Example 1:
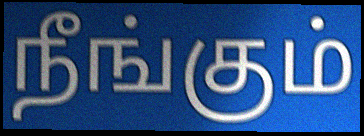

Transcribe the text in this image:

நீங்கும்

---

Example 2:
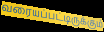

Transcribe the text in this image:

வரையப்பட்டிருக்கும்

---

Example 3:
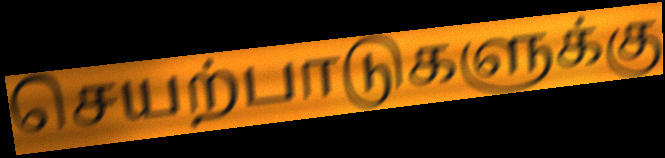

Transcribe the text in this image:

செயற்பாடுகளுக்கு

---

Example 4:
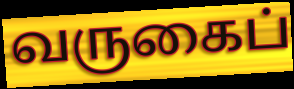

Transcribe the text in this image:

வருகைப்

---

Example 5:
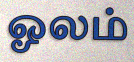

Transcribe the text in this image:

ஓலம்